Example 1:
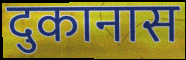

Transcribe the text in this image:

दुकानास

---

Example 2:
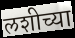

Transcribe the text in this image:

लशीच्या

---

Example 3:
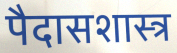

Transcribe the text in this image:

पैदासशास्त्र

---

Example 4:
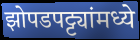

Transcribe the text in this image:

झोपडपट्ट्यांमध्ये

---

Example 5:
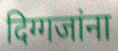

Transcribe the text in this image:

दिग्गजांना